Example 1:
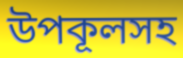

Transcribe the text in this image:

উপকূলসহ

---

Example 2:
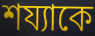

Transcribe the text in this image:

শয্যাকে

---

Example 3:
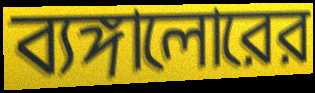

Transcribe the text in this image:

ব্যঙ্গালোরের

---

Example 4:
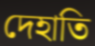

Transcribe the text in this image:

দেহাতি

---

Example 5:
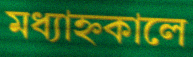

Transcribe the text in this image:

মধ্যাহ্নকালে